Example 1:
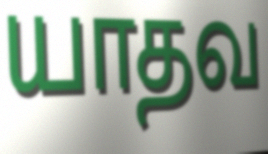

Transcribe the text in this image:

யாதவ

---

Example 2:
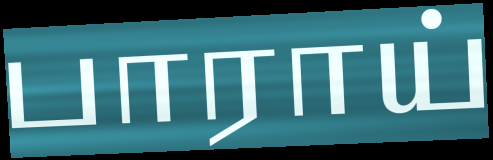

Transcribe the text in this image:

பாராய்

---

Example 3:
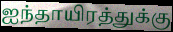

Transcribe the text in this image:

ஐந்தாயிரத்துக்கு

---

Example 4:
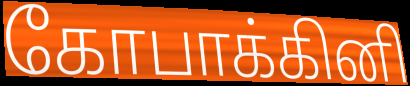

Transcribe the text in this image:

கோபாக்கினி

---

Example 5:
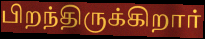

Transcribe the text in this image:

பிறந்திருக்கிறார்